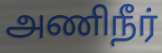
அணிநீர்